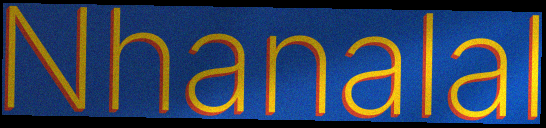
Nhanalal